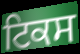
ਟਿਕਸ